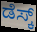
ಡೆಸ್ಕ್